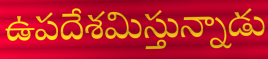
ఉపదేశమిస్తున్నాడు